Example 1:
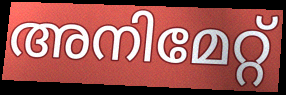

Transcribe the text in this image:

അനിമേറ്റ്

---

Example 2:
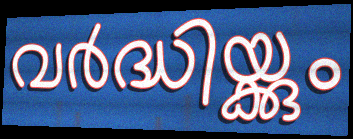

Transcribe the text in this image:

വർദ്ധിയ്ക്കും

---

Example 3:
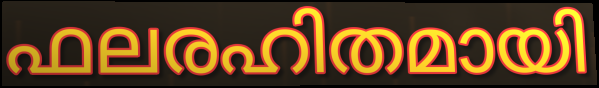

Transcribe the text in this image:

ഫലരഹിതമായി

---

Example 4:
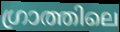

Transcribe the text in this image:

ഗ്രാത്തിലെ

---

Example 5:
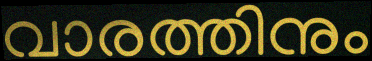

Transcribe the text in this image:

വാരത്തിനും